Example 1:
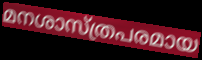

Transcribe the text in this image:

മനശാസ്ത്രപരമായ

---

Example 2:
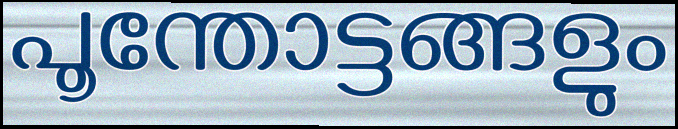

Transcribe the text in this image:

പൂന്തോട്ടങ്ങളും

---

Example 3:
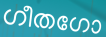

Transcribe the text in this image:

ഗീതഗോ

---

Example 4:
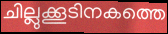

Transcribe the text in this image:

ചില്ലുക്കൂടിനകത്തെ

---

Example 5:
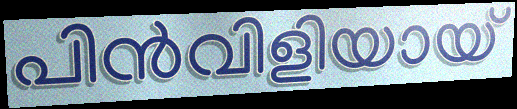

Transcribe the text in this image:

പിൻവിളിയായ്